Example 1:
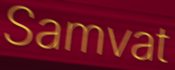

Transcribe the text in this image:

Samvat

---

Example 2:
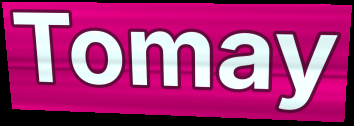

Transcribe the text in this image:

Tomay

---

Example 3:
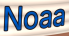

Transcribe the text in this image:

Noaa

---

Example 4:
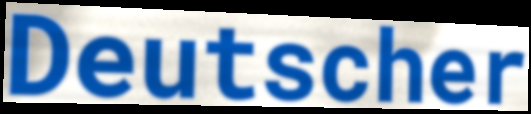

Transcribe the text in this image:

Deutscher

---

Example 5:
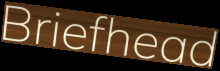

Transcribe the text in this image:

Briefhead